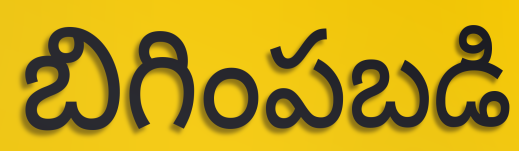
బిగింపబడి